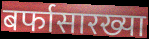
बर्फासारख्या